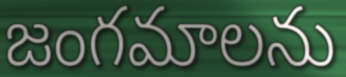
జంగమాలను